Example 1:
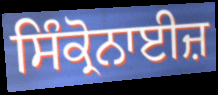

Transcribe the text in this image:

ਸਿੰਕ੍ਰੋਨਾਈਜ਼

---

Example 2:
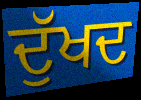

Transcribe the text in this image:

ਦੁੱਖਦ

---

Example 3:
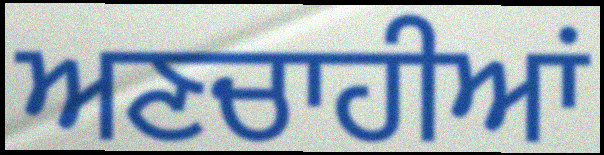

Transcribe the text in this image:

ਅਣਚਾਹੀਆਂ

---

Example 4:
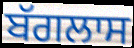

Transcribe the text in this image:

ਬੱਗਲਾਸ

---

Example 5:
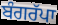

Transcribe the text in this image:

ਬੰਗਰੱਪਾ